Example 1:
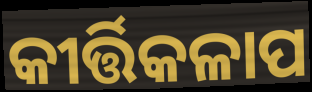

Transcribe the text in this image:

କୀର୍ତ୍ତିକଳାପ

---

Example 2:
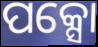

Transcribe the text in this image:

ପକ୍ସୋ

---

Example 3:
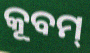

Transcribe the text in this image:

କୂବମ୍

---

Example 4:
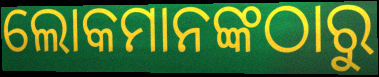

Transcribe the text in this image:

ଲୋକମାନଙ୍କଠାରୁ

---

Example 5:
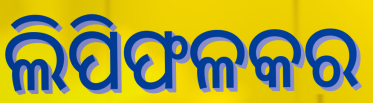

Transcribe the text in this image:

ଲିପିଫଳକର